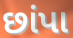
છાંપા